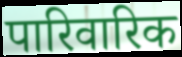
पारिवारिक